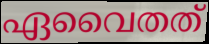
ഏവൈതത്